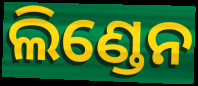
ଲିଣ୍ଡେନ